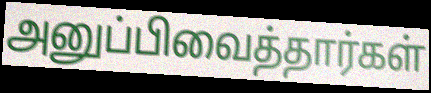
அனுப்பிவைத்தார்கள்